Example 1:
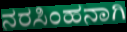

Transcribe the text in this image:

ನರಸಿಂಹನಾಗಿ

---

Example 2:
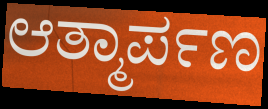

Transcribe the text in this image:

ಆತ್ಮಾರ್ಪಣ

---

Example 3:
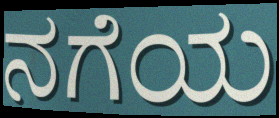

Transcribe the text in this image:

ನಗೆಯ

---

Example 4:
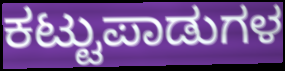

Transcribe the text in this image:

ಕಟ್ಟುಪಾಡುಗಳ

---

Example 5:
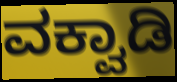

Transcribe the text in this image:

ವಕ್ವಾಡಿ